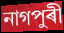
নাগপুৰী